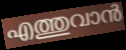
എത്തുവാൻ